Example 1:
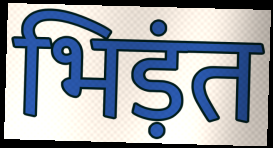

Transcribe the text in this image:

भिड़ंत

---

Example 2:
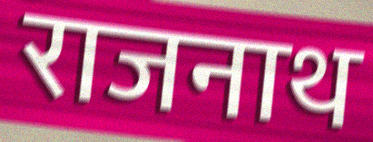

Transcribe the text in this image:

राजनाथ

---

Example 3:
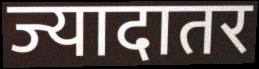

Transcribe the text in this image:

ज्यादातर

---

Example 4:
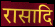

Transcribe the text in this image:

रासादि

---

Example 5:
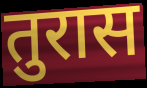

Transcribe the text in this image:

तुरास